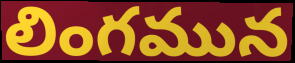
లింగమున